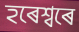
হৰেশ্বৰে